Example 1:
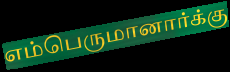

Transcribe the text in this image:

எம்பெருமானார்க்கு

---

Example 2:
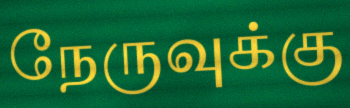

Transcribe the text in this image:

நேருவுக்கு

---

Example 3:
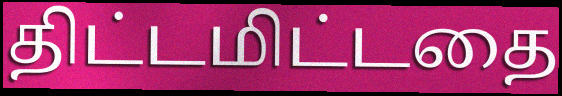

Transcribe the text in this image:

திட்டமிட்டதை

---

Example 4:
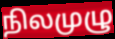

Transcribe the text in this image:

நிலமுழு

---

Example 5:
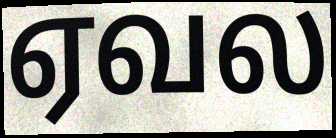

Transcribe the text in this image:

ஏவல